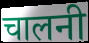
चालनी